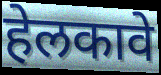
हेलकावे